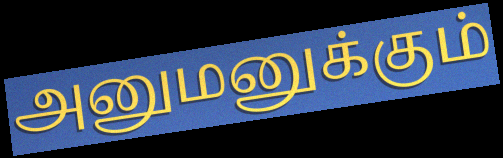
அனுமனுக்கும்